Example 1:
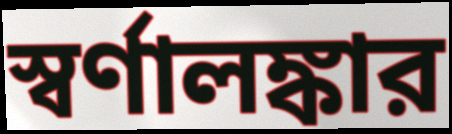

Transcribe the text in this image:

স্বর্ণালঙ্কার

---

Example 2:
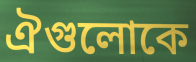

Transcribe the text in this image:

ঐগুলোকে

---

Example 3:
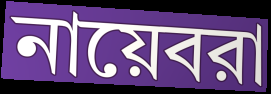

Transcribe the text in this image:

নায়েবরা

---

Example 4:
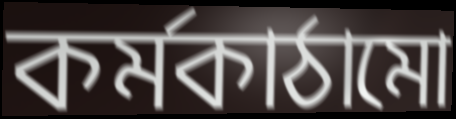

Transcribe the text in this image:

কর্মকাঠামো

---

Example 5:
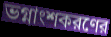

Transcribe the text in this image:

ভগ্নাংশকরণের